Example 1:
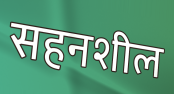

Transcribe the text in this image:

सहनशील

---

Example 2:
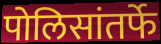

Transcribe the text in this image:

पोलिसांतर्फे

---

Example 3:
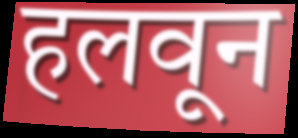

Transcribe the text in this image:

हलवून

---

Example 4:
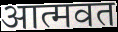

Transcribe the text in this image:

आत्मवत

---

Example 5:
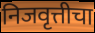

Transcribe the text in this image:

निजवृत्तीचा